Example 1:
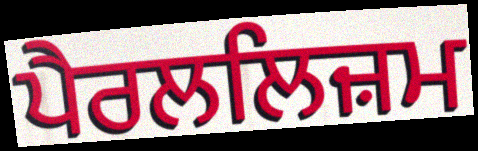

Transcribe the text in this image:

ਪੈਰਲਲਿਜ਼ਮ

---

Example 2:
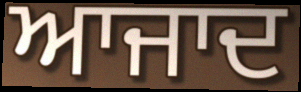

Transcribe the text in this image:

ਆਜਾਦ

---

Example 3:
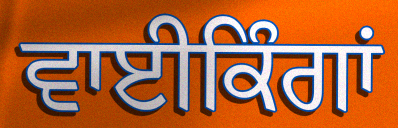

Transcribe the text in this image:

ਵਾਈਕਿੰਗਾਂ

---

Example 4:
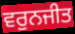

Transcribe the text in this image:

ਵਰੁਨਜੀਤ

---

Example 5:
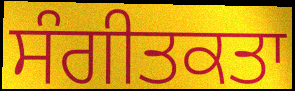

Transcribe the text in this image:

ਸੰਗੀਤਕਤਾ